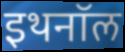
इथनॉल